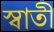
স্বাতী